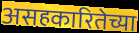
असहकारितेच्या